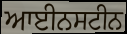
ਆਈਨਸਟੀਨ